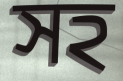
সহ